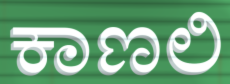
ಕಾಣಲಿ